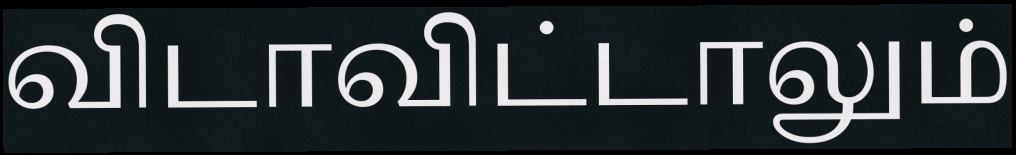
விடாவிட்டாலும்